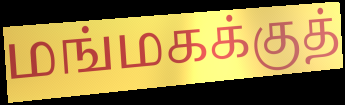
மங்மகக்குத்